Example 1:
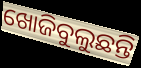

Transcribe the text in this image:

ଖୋଜିବୁଲୁଛନ୍ତି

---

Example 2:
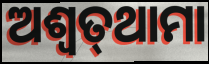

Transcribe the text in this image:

ଅଶ୍ବତ୍‌ଥାମା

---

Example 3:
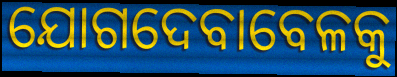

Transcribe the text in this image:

ଯୋଗଦେବାବେଳକୁ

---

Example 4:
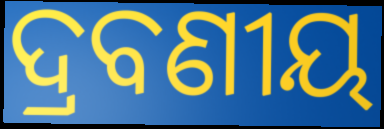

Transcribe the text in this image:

ଦ୍ରବଣୀୟ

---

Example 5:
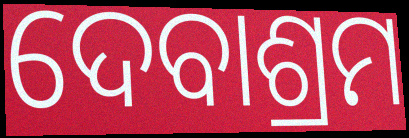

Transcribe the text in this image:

ଦେବାଶ୍ରମ